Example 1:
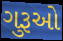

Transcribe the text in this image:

ગુરૂઓ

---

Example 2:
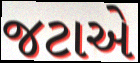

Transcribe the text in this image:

જટાએ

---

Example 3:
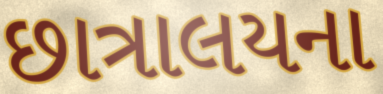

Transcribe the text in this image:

છાત્રાલયના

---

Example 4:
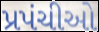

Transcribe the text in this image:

પ્રપંચીઓ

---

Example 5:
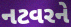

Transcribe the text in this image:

નટવરને